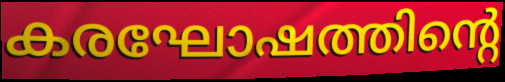
കരഘോഷത്തിന്റെ